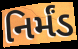
નિર્મંડ